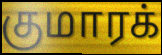
குமாரக்